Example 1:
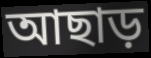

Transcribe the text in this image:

আছাড়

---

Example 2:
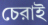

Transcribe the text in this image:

চেরাই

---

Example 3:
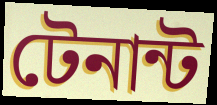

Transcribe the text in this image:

টেনান্ট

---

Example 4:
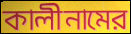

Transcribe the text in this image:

কালীনামের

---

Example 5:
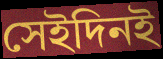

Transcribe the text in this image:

সেইদিনই